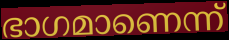
ഭാഗമാണെന്ന്